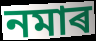
নমাৰ